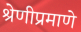
श्रेणीप्रमाणे